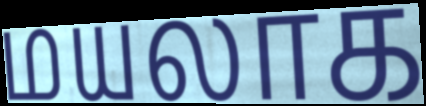
மயலாக